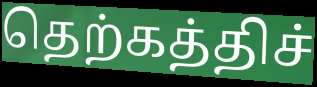
தெற்கத்திச்